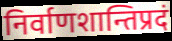
निर्वाणशान्तिप्रदं